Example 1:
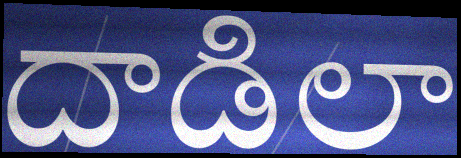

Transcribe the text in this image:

దాడిలా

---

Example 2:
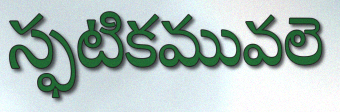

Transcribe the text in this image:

స్ఫటికమువలె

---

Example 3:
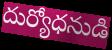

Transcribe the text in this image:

దుర్యోధనుడి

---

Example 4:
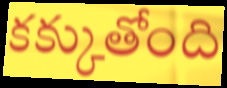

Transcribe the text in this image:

కక్కుతోంది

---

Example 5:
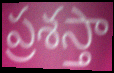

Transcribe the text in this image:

ప్రశస్తా